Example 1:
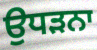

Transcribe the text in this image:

ਉਧੜਨਾ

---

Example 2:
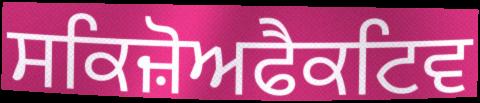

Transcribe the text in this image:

ਸਕਿਜ਼ੋਅਫੈਕਟਿਵ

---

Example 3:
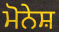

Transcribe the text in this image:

ਮੋਨੇਸ਼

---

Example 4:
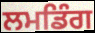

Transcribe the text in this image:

ਲਮਡਿੰਗ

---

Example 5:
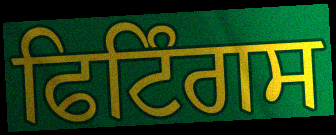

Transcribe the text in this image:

ਫਿਟਿੰਗਸ